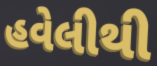
હવેલીથી